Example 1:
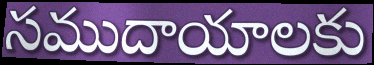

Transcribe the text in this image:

సముదాయాలకు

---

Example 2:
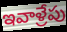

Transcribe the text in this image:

ఇవాళ్రేపు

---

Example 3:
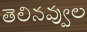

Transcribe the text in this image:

తెలినవ్వుల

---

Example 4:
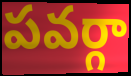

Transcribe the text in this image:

పవర్గా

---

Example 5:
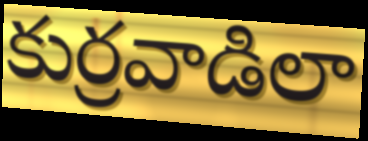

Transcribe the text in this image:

కుర్రవాడిలా